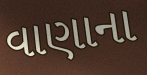
વાણાના